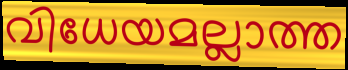
വിധേയമല്ലാത്ത